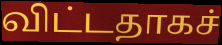
விட்டதாகச்